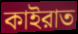
কাইরাত